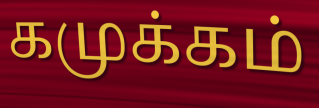
கமுக்கம்